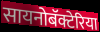
सायनोबॅक्टेरिया